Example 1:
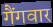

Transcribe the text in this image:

गैंगवार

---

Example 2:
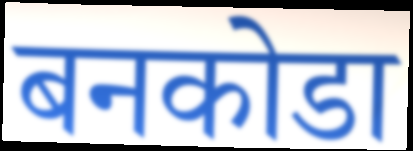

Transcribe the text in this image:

बनकोडा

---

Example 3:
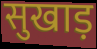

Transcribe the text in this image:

सुखाड़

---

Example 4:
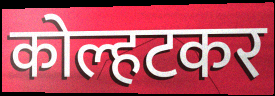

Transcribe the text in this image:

कोल्हटकर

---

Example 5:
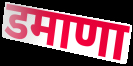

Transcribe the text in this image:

डमाणा